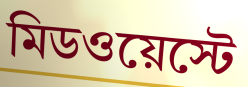
মিডওয়েস্টে